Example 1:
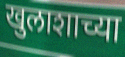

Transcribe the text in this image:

खुलाशाच्या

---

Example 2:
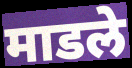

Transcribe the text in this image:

माडले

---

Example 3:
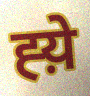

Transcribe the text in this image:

ह्य़े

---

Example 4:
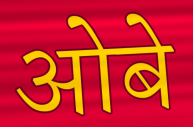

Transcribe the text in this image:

ओबे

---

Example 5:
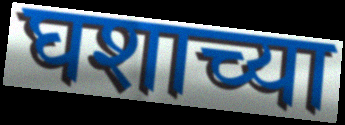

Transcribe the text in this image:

घशाच्या